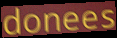
donees